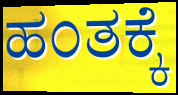
ಹಂತಕ್ಕೆ